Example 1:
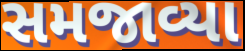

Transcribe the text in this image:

સમજાવ્યા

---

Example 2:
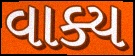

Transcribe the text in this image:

વાક્ય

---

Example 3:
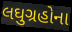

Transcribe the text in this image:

લઘુગ્રહોના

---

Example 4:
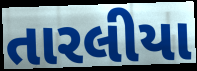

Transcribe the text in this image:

તારલીયા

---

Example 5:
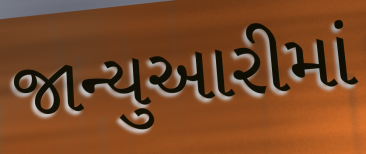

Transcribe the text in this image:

જાન્યુઆરીમાં